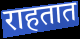
राहतात